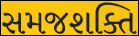
સમજશક્તિ